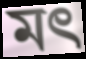
মৎ